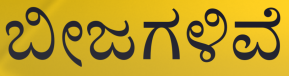
ಬೀಜಗಳಿವೆ